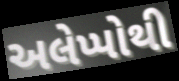
અલેપ્પોથી